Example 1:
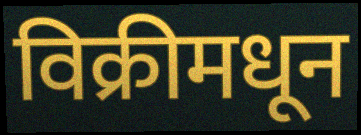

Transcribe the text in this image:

विक्रीमधून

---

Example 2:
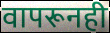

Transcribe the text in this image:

वापरूनही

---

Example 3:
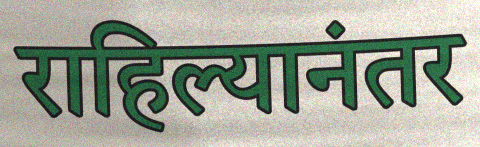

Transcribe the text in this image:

राहिल्यानंतर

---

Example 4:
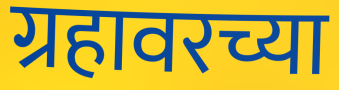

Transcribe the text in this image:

ग्रहावरच्या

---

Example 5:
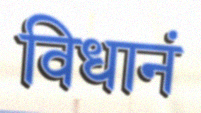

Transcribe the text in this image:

विधानं